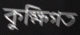
কুক্ষিগত